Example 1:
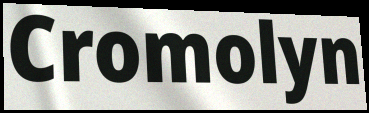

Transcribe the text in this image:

Cromolyn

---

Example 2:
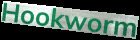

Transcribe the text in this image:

Hookworm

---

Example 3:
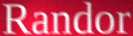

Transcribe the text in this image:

Randor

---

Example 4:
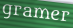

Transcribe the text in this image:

gramer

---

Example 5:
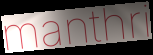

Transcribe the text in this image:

manthri